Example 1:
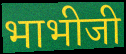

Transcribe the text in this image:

भाभीजी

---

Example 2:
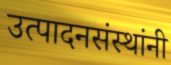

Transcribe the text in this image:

उत्पादनसंस्थांनी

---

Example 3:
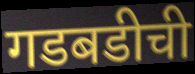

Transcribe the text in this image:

गडबडीची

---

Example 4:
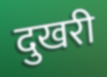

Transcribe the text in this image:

दुखरी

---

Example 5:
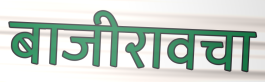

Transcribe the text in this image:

बाजीरावचा